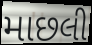
માછલી